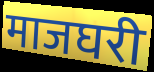
माजघरी